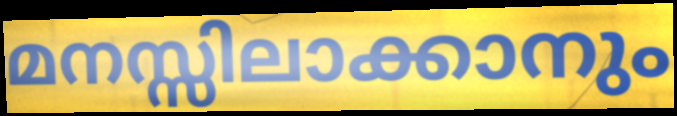
മനസ്സിലാക്കാനും